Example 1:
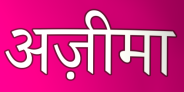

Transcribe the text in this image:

अज़ीमा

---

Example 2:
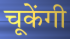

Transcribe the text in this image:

चूकेंगी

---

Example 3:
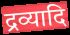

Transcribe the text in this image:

द्रव्यादि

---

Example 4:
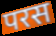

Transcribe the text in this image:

परस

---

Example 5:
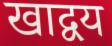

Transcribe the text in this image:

खाद्वय